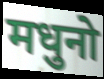
मधुनो